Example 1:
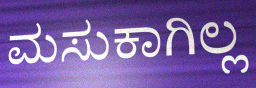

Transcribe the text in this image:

ಮಸುಕಾಗಿಲ್ಲ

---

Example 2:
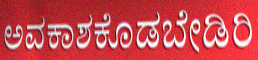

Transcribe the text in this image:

ಅವಕಾಶಕೊಡಬೇಡಿರಿ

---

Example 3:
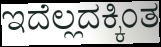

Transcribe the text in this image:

ಇದೆಲ್ಲದಕ್ಕಿಂತ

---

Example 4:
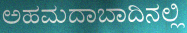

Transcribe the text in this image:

ಅಹಮದಾಬಾದಿನಲ್ಲಿ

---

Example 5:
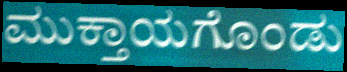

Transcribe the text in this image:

ಮುಕ್ತಾಯಗೊಂಡು